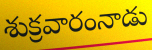
శుక్రవారంనాడు